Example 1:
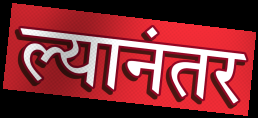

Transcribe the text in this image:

ल्यानंतर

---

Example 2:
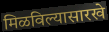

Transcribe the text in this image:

मिळविल्यासारखे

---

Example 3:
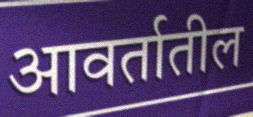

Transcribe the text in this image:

आवर्तातील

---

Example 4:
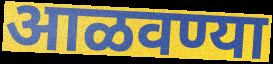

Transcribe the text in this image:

आळवण्या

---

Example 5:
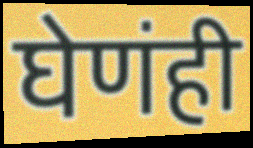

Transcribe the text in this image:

घेणंही